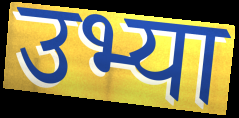
उभ्या